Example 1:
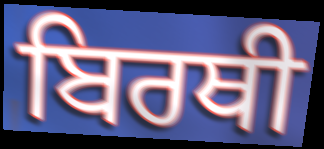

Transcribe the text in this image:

ਬਿਰਥੀ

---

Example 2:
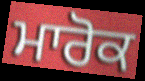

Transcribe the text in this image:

ਮਾਰੋਕ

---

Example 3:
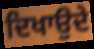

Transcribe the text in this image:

ਦਿਖਾਉਦੇ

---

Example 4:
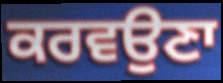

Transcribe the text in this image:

ਕਰਵਉਣਾ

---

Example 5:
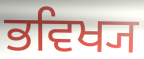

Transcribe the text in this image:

ਭਵਿਖ੍ਯ